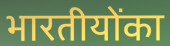
भारतीयोंका